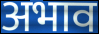
अभाव